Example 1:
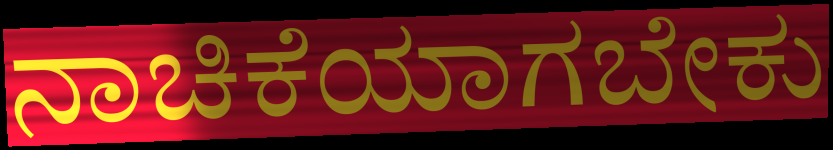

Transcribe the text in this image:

ನಾಚಿಕೆಯಾಗಬೇಕು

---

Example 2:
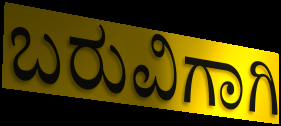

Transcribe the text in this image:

ಬರುವಿಗಾಗಿ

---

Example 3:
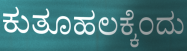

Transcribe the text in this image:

ಕುತೂಹಲಕ್ಕೆಂದು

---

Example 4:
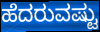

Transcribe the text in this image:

ಹೆದರುವಷ್ಟು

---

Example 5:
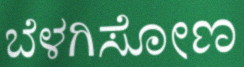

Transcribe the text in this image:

ಬೆಳಗಿಸೋಣ